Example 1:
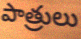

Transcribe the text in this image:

పాత్రులు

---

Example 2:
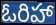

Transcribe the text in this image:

ఓరిహా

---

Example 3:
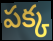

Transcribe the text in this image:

పక్క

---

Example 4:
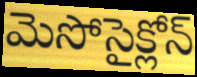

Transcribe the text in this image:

మెసోసైక్లోన్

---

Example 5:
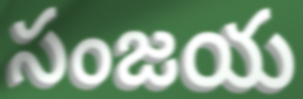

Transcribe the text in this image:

సంజయ